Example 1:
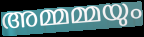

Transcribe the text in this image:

അമ്മമ്മയും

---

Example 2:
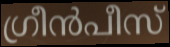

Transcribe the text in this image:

ഗ്രീൻപീസ്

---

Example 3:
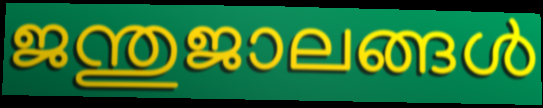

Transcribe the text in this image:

ജന്തുജാലങ്ങൾ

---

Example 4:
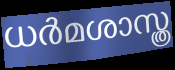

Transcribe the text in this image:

ധർമശാസ്ത്ര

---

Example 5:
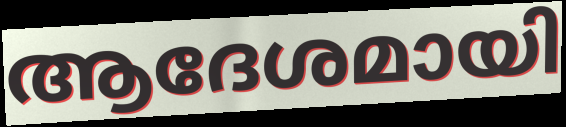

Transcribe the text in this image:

ആദേശമായി